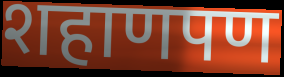
शहाणपण